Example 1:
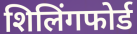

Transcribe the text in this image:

शिलिंगफोर्ड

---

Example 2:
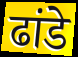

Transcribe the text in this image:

ढांडे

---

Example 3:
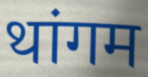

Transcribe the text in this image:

थांगम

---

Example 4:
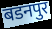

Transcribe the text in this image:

बडनपुर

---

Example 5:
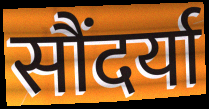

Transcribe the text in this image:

सौंदर्या